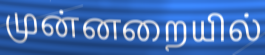
முன்னறையில்